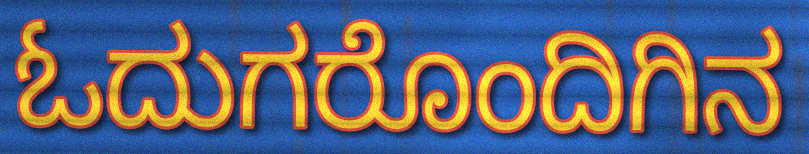
ಓದುಗರೊಂದಿಗಿನ